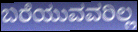
ಬರೆಯುವವರಿಲ್ಲ